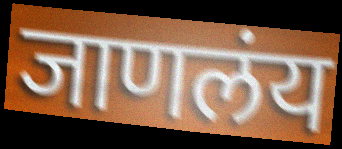
जाणलंय